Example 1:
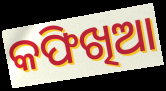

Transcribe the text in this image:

କଫିଖିଆ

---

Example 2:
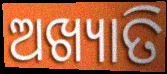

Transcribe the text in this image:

ଅଖ୍ୟାତି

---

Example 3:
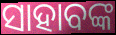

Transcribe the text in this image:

ସାହାବଙ୍କ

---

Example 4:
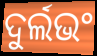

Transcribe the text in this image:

ଦୁର୍ଲଭଂ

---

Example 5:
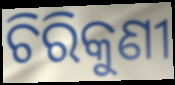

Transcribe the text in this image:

ଚିରିକୁଣୀ